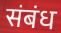
संबंध